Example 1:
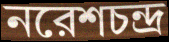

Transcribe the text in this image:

নরেশচন্দ্র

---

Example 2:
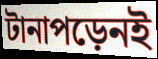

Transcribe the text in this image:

টানাপড়েনই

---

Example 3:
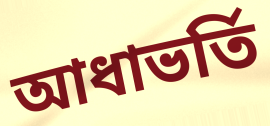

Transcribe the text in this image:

আধাভর্তি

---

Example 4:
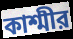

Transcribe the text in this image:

কাশ্মীর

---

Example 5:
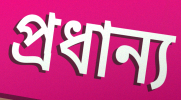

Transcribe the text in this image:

প্রধান্য